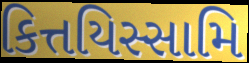
કિત્તયિસ્સામિ